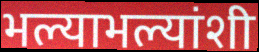
भल्याभल्यांशी